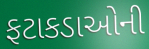
ફટાકડાઓની